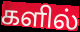
களில்